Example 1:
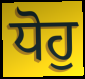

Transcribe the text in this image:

ਧੋਹੁ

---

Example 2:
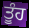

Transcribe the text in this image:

ਤੂੰਹ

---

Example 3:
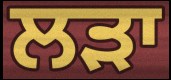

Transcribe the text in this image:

ਲੜਾ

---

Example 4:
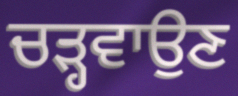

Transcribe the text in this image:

ਚੜ੍ਹਵਾਉਣ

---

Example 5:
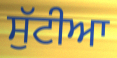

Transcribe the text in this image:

ਸੁੱਟੀਆ